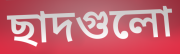
ছাদগুলো